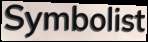
Symbolist